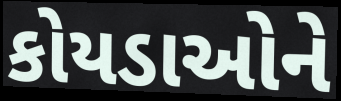
કોયડાઓને